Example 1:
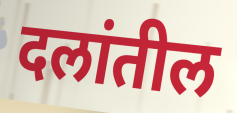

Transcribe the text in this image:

दलांतील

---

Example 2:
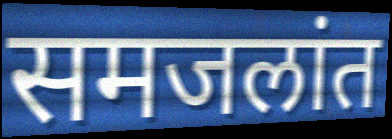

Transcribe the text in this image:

समजलांत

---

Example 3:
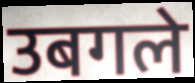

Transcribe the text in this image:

उबगले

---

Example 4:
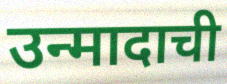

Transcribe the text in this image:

उन्मादाची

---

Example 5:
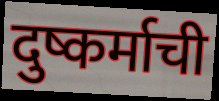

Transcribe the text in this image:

दुष्कर्माची